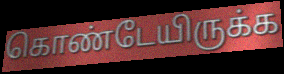
கொண்டேயிருக்க